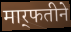
मार्फतीने